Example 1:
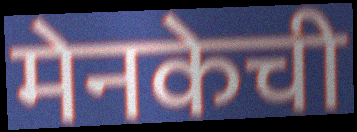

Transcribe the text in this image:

मेनकेची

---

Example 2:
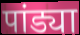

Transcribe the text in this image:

पांड्या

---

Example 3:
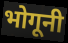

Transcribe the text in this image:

भोगूनी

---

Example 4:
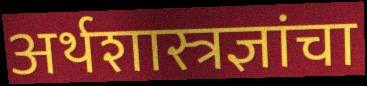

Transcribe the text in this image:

अर्थशास्त्रज्ञांचा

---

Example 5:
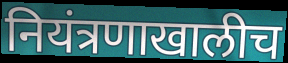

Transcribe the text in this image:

नियंत्रणाखालीच